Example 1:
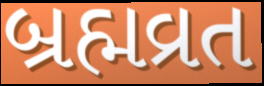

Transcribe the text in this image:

બ્રહ્મવ્રત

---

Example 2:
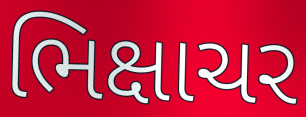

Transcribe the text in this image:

ભિક્ષાચર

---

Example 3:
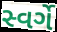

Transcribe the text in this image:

સ્વર્ગે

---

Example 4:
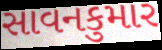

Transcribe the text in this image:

સાવનકુમાર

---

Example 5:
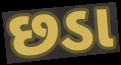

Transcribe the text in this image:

છડા